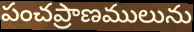
పంచప్రాణములును